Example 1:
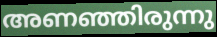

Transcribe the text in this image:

അണഞ്ഞിരുന്നു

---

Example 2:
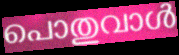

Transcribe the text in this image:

പൊതുവാൾ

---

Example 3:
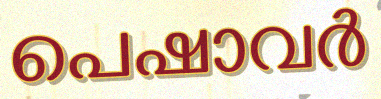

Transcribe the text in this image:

പെഷാവർ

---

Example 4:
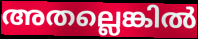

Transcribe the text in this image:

അതല്ലെങ്കിൽ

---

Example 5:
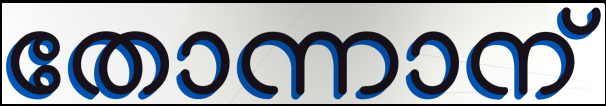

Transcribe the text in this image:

തോന്നാന്